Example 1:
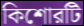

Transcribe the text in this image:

কিশোরটি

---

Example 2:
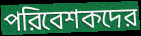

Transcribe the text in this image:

পরিবেশকদের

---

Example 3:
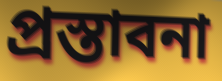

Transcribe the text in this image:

প্রস্তাবনা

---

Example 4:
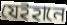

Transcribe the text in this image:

যেইহানে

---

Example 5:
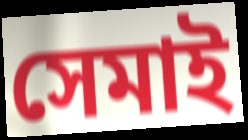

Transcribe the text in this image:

সেমাই